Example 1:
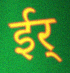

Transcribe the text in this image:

ईर्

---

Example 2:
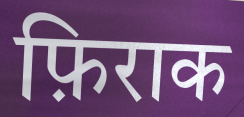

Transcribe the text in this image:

फ़िराक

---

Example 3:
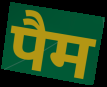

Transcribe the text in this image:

पैम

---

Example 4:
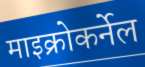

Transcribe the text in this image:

माइक्रोकर्नेल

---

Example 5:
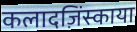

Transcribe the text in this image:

कलादज़िंस्काया